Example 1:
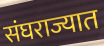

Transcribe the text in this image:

संघराज्यात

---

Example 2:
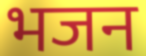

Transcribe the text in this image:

भजन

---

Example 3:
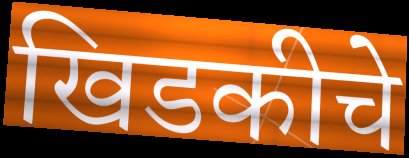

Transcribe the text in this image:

खिडकीचे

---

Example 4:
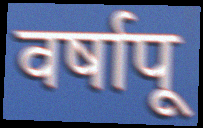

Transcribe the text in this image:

वर्षापू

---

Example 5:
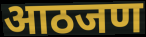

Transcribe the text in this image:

आठजण